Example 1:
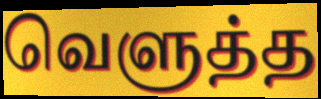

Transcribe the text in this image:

வெளுத்த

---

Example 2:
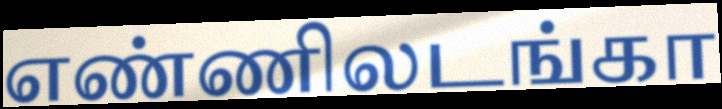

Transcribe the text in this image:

எண்ணிலடங்கா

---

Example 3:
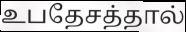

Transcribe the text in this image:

உபதேசத்தால்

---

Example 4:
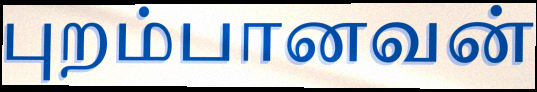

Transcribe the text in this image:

புறம்பானவன்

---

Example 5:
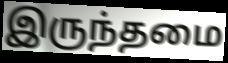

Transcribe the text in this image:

இருந்தமை